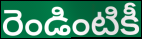
రెండింటికీ